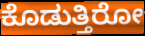
ಕೊಡುತ್ತಿರೋ